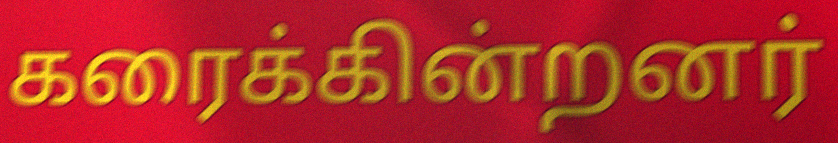
கரைக்கின்றனர்